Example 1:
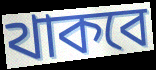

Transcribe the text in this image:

থাকবে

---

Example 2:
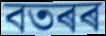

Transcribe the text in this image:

বতৰৰ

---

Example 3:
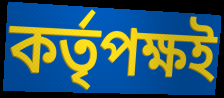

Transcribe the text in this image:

কৰ্তৃপক্ষই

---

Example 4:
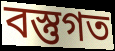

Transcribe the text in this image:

বস্তুগত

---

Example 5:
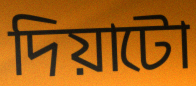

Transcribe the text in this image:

দিয়াটো